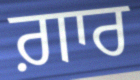
ਗ਼ਾਰ